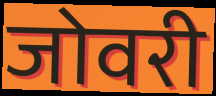
जोवरी